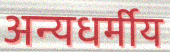
अन्यधर्मीय